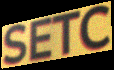
SETC